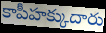
కాపీహక్కుదారు